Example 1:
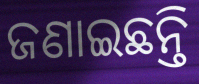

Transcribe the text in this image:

ଜଣାଇଛନ୍ତି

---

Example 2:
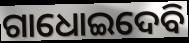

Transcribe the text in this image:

ଗାଧୋଇଦେବି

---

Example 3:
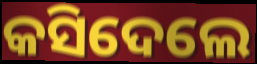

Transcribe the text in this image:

କସିଦେଲେ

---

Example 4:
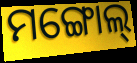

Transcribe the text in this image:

ମଙ୍ଗୋଲ୍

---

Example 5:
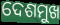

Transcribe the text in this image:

ଦେଶମୁଖ